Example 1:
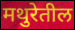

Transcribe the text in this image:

मथुरेतील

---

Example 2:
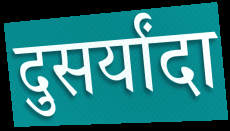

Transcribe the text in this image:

दुसर्यांदा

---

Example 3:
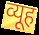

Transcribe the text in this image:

व्यूह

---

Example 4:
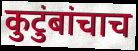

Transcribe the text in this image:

कुटुंबांचाच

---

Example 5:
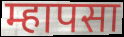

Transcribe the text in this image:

म्हापसा